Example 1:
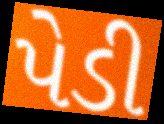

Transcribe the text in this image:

પેડી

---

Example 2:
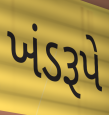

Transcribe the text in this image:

ખંડરૂપે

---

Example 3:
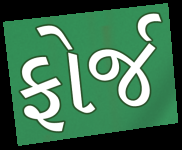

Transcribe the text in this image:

ફોર્જ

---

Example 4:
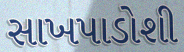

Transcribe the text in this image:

સાખપાડોશી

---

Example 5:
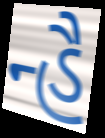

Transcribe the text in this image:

ન્હૈ